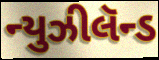
ન્યુઝીલૅન્ડ